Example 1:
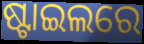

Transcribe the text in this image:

ଷ୍ଟାଇଲରେ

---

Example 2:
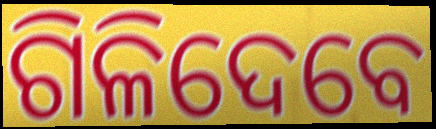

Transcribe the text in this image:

ଗିଳିଦେବେ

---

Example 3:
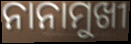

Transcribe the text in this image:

ନାନାମୁଖୀ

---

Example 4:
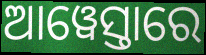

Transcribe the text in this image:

ଆୱେସ୍ତାରେ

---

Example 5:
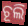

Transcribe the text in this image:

ଚୂଲି